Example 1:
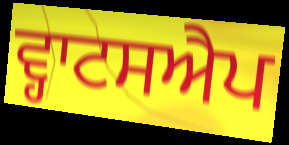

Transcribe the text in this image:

ਵ੍ਹਾਟਸਐਪ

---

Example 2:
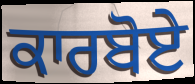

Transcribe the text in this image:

ਕਾਰਬੋਏ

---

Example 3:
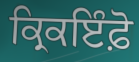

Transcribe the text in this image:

ਕ੍ਰਿਕਇੰਫ਼ੋ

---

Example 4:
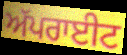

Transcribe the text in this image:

ਅੱਪਰਾਈਟ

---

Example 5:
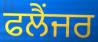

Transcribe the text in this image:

ਫਲੈਂਜਰ